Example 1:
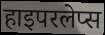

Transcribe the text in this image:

हाइपरलेप्स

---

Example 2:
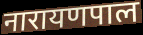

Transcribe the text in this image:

नारायणपाल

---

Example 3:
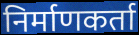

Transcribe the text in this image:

निर्माणकर्ता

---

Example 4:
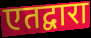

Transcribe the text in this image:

एतद्वारा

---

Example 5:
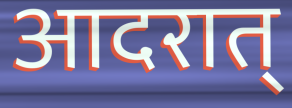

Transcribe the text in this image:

आदरात्